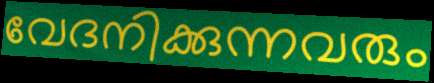
വേദനിക്കുന്നവരും